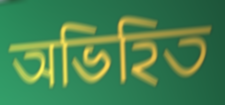
অভিহিত